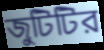
জুটিটির